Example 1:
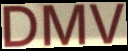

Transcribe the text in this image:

DMV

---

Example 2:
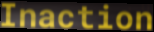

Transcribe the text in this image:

Inaction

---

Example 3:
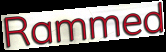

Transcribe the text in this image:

Rammed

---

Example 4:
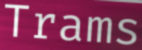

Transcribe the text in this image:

Trams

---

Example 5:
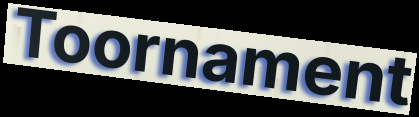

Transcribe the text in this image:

Toornament